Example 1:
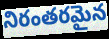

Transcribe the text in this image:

నిరంతరమైన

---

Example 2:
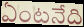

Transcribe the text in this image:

ఏంటనేది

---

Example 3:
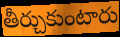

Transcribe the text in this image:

తీర్చుకుంటారు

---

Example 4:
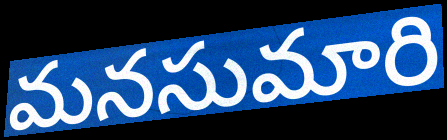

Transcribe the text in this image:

మనసుమారి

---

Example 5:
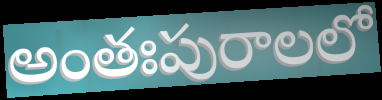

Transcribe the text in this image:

అంతఃపురాలలో